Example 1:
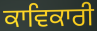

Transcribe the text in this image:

ਕਾਵਿਕਾਰੀ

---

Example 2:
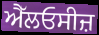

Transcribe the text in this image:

ਐੱਲਓਸੀਜ਼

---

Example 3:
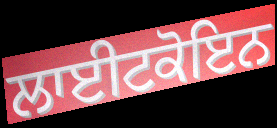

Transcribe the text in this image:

ਲਾਈਟਕੋਇਨ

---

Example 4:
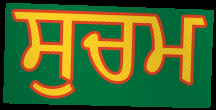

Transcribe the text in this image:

ਸੁਚਮ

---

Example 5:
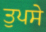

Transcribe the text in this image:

ਤੁਪਸੇ